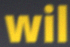
wil